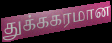
துக்ககரமான